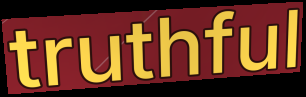
truthful